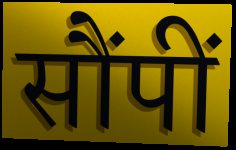
सौंपीं